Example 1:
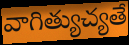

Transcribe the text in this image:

వాగిత్యుచ్యతే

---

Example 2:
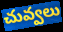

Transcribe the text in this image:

చువ్వలు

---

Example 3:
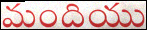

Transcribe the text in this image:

మందియు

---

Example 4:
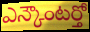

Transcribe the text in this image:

ఎన్కౌంటర్తో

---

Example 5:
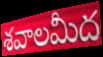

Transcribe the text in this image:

శవాలమీద